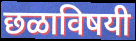
छळाविषयी